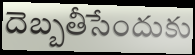
దెబ్బతీసేందుకు